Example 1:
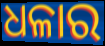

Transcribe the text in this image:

ଧଳାର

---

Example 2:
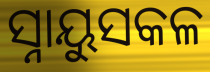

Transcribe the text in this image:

ସ୍ନାୟୁସକଳ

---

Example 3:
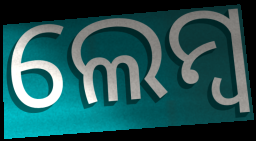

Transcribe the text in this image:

ଲେମ୍ବ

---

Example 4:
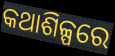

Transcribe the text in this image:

କଥାଶିଳ୍ପରେ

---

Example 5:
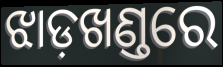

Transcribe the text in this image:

ଝାଡ଼ଖଣ୍ଡରେ